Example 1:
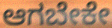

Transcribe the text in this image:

ಆಗಬೇಕೇ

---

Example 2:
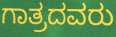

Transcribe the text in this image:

ಗಾತ್ರದವರು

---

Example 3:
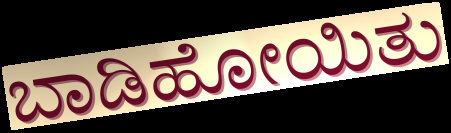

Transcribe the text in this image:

ಬಾಡಿಹೋಯಿತು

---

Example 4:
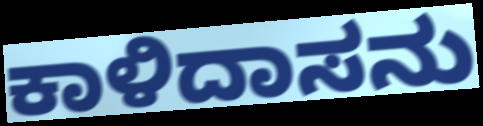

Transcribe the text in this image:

ಕಾಳಿದಾಸನು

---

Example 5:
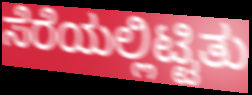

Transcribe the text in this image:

ಸೆರೆಯಲ್ಲಿಟ್ಟಿತು